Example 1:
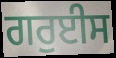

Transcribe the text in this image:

ਗਰੁਈਸ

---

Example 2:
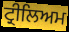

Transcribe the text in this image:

ਟ੍ਰੀਲਿਅਮ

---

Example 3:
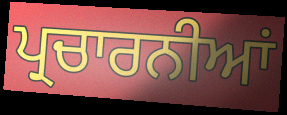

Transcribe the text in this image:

ਪ੍ਰਚਾਰਨੀਆਂ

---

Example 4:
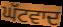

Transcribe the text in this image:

ਘੱਟਵਾਦ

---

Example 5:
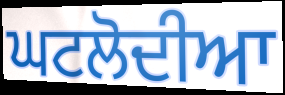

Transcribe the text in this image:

ਘਟਲੋਦੀਆ